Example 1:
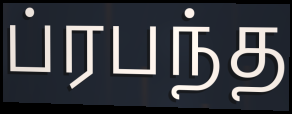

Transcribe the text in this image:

ப்ரபந்த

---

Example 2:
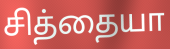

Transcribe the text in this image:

சித்தையா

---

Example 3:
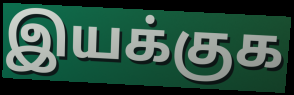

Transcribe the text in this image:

இயக்குக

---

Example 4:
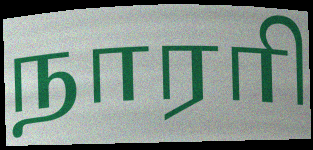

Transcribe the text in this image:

நாரரி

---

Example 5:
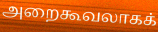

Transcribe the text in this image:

அறைகூவலாகக்